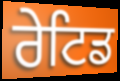
ਰੇਟਿਡ